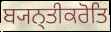
ਬ੍ਯਨ੍ਤੀਕਰੋਤਿ